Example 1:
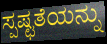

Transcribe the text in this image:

ಸ್ಪಷ್ಟತೆಯನ್ನು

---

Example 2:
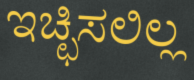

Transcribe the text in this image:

ಇಚ್ಛಿಸಲಿಲ್ಲ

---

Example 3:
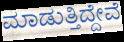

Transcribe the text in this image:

ಮಾಡುತ್ತಿದ್ದೇವೆ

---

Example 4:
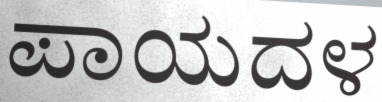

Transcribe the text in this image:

ಪಾಯದಳ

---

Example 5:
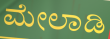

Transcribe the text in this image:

ಮೇಲಾಡಿ